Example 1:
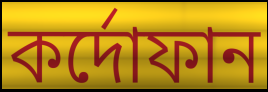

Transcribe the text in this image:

কর্দোফান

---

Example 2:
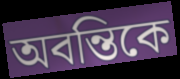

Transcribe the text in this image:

অবন্তিকে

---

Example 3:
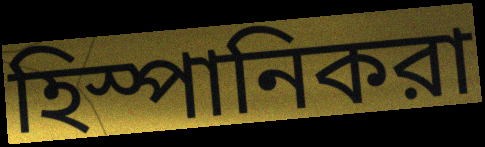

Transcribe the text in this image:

হিস্পানিকরা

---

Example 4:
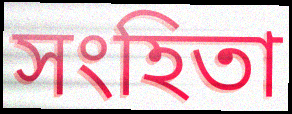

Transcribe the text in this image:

সংহিতা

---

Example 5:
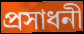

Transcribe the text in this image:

প্রসাধনী